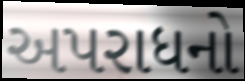
અપરાધનો